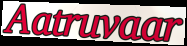
Aatruvaar